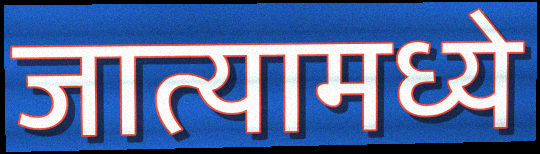
जात्यामध्ये